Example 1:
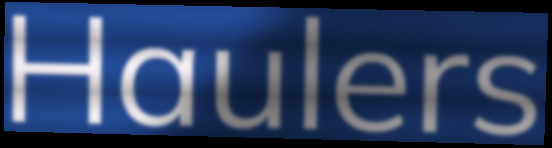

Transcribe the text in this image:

Haulers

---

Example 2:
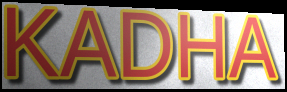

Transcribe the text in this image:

KADHA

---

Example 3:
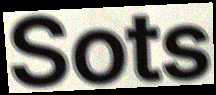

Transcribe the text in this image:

Sots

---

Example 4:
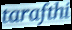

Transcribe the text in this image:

tarafthi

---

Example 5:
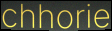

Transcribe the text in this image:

chhorie